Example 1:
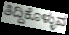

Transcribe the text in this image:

ತಿದ್ದಿಕೊಳ್ಳುವ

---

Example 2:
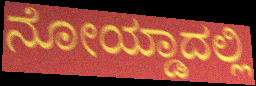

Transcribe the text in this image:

ನೋಯ್ಡಾದಲ್ಲಿ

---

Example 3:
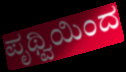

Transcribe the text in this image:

ಪೃಥ್ವಿಯಿಂದ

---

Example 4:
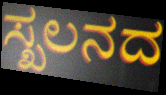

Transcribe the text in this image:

ಸ್ಖಲನದ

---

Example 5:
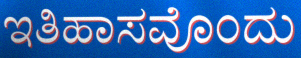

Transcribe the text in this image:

ಇತಿಹಾಸವೊಂದು